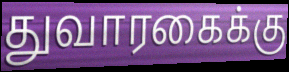
துவாரகைக்கு